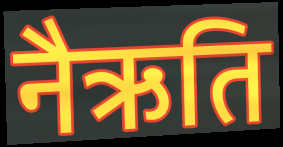
नैऋति